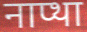
नाप्था